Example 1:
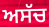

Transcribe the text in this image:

ਅਸੱਚ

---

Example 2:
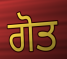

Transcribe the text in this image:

ਗੋਤ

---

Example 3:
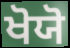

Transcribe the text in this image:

ਖੋਯੋ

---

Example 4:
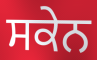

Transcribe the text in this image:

ਸਕੇਨ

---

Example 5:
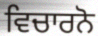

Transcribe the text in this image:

ਵਿਚਾਰਨੋ